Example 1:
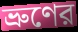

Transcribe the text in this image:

ভ্রুণের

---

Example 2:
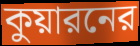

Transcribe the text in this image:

কুয়ারনের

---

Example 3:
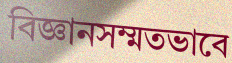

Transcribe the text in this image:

বিজ্ঞানসম্মতভাবে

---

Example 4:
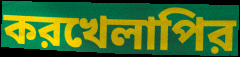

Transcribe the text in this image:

করখেলাপির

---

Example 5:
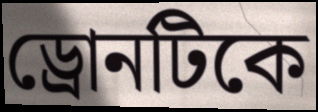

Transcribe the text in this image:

ড্রোনটিকে